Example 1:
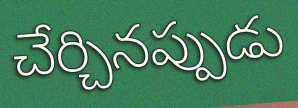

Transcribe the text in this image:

చేర్చినప్పుడు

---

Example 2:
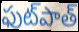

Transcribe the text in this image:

ఫుట్‌పాత్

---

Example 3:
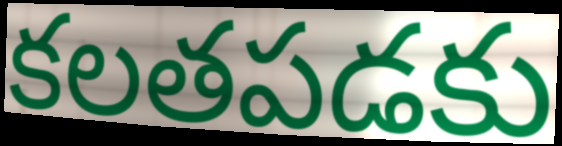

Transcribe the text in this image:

కలతపడకు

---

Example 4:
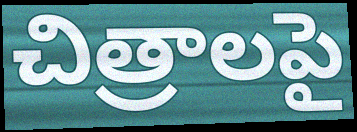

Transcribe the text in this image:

చిత్రాలపై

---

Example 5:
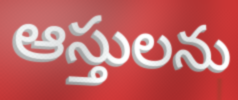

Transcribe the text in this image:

ఆస్తులను